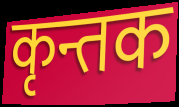
कृन्तक